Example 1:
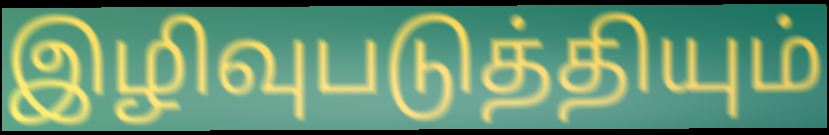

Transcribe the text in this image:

இழிவுபடுத்தியும்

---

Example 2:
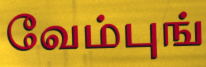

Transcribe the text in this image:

வேம்புங்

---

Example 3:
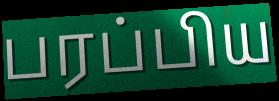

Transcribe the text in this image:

பரப்பிய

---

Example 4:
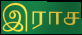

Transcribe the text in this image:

இராச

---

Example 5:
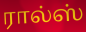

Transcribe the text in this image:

ரால்ஸ்